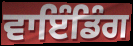
ਵਾਇੰਡਿੰਗ